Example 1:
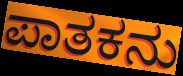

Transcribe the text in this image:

ಪಾತಕನು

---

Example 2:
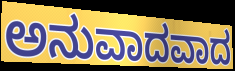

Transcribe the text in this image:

ಅನುವಾದವಾದ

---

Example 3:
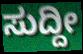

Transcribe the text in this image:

ಸುದ್ದೀ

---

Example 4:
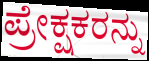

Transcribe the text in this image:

ಪ್ರೇಕ್ಷಕರನ್ನು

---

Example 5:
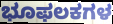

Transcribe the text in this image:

ಭೂಫಲಕಗಳ